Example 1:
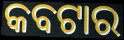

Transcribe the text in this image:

କବଟାର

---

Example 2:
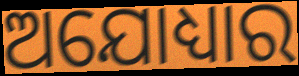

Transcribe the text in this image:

ଅଯୋଧ୍ୟାର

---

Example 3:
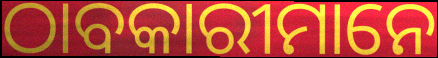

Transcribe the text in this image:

ଠାବକାରୀମାନେ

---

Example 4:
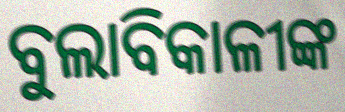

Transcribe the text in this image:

ବୁଲାବିକାଳୀଙ୍କ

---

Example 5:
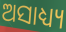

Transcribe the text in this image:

ଅସାଧ୍ୟ୍ୟ